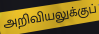
அறிவியலுக்குப்